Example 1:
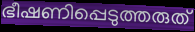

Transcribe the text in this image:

ഭീഷണിപ്പെടുത്തരുത്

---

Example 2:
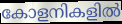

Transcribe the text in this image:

കോളനികളിൽ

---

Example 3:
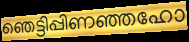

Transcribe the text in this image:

ഞെട്ടിപ്പിണഞ്ഞഹോ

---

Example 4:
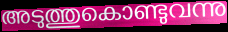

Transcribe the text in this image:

അടുത്തുകൊണ്ടുവന്നു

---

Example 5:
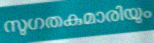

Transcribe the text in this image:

സുഗതകുമാരിയും